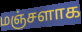
மஞ்சளாக